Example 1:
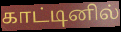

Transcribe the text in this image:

காட்டினில்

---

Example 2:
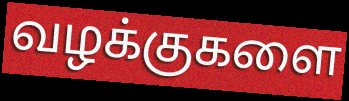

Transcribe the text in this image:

வழக்குகளை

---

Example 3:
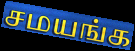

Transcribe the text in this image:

சமயங்க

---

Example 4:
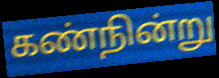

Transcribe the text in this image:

கண்நின்று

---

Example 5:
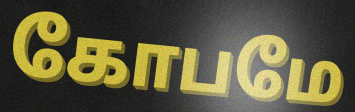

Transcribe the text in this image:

கோபமே